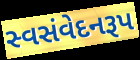
સ્વસંવેદનરૂપ